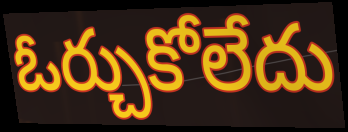
ఓర్చుకోలేదు